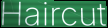
Haircut